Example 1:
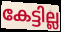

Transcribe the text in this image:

കേട്ടില്ല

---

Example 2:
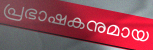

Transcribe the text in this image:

പ്രഭാഷകനുമായ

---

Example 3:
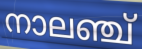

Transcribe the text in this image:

നാലഞ്ച്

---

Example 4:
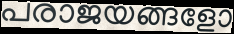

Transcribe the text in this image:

പരാജയങ്ങളോ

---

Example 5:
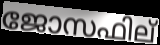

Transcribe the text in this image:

ജോസഫില്